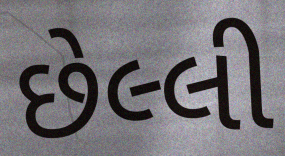
છેલ્લી